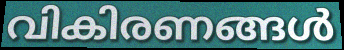
വികിരണങ്ങൾ